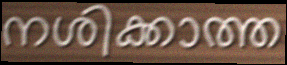
നശിക്കാത്ത